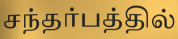
சந்தர்பத்தில்